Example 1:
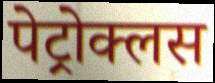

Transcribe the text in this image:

पेट्रोक्लस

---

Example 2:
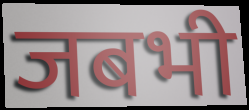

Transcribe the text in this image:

जबभी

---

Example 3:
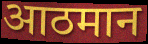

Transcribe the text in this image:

आठमान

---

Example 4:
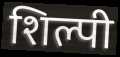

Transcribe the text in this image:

शिल्‍पी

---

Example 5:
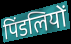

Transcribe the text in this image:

पिंडलियों